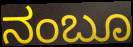
ನಂಬೂ